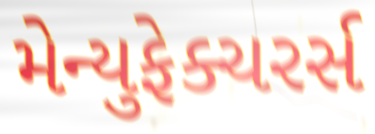
મેન્યુફેક્ચરર્સ